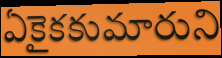
ఏకైకకుమారుని